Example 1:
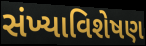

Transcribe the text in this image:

સંખ્યાવિશેષણ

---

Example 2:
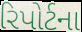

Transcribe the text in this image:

રિપોર્ટના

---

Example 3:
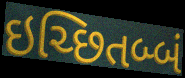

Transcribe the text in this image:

ઇચ્છિતબ્બં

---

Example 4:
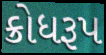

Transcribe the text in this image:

ક્રોધરૂપ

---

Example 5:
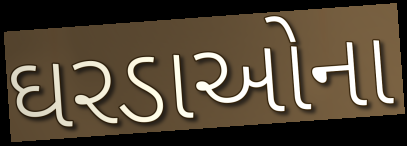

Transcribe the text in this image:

ઘરડાઓના